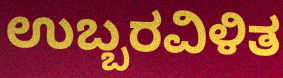
ಉಬ್ಬರವಿಳಿತ